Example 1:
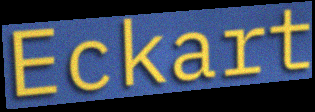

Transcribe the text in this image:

Eckart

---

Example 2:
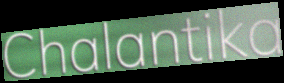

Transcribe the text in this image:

Chalantika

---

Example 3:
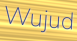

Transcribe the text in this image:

Wujud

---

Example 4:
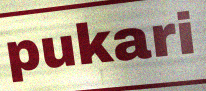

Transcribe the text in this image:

pukari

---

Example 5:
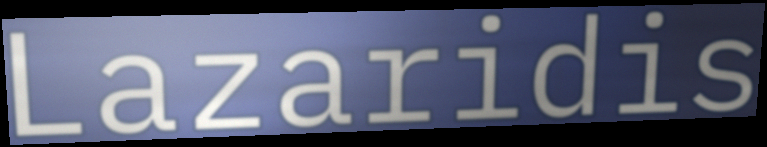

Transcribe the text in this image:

Lazaridis